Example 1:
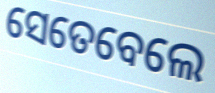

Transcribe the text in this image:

ସେତେବେଲେ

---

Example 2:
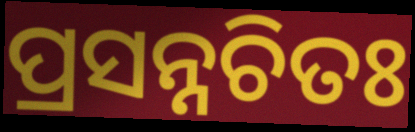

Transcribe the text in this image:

ପ୍ରସନ୍ନଚିତଃ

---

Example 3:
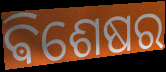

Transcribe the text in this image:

ଵିଶେଷର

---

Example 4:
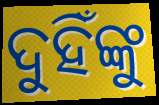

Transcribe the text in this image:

ଦୁହିଁଙ୍କୁ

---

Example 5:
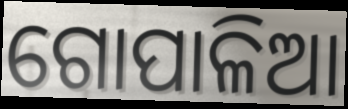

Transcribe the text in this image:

ଗୋପାଳିଆ